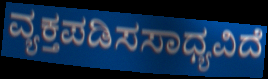
ವ್ಯಕ್ತಪಡಿಸಸಾಧ್ಯವಿದೆ